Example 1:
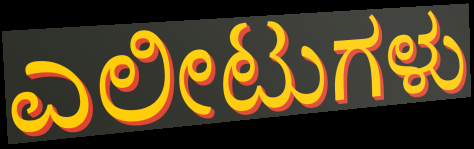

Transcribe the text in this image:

ಎಲೀಟುಗಳು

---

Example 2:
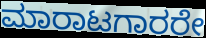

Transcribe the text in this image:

ಮಾರಾಟಗಾರರೇ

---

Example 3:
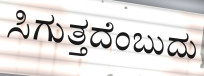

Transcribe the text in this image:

ಸಿಗುತ್ತದೆಂಬುದು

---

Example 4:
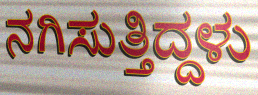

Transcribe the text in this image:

ನಗಿಸುತ್ತಿದ್ದಳು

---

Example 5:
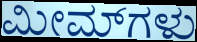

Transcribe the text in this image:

ಮೀಮ್‌ಗಳು